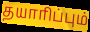
தயாரிப்பும்